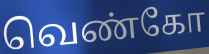
வெண்கோ